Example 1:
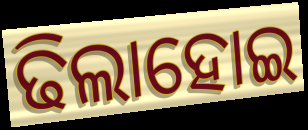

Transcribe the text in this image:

ଢିଲାହୋଇ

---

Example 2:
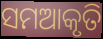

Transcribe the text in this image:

ସମଆକୃତି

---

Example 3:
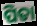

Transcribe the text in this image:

ପିତା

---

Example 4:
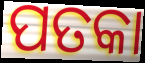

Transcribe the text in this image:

ପତକା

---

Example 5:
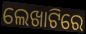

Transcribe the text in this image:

ଲେଖାଟିରେ